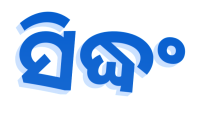
ସିଦ୍ଧଂ